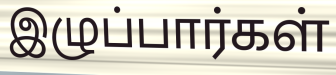
இழுப்பார்கள்